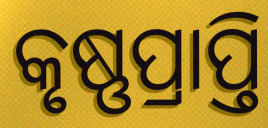
କୃଷ୍ଣପ୍ରାପ୍ତି